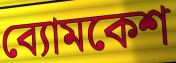
ব্যোমকেশ